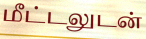
மீட்டலுடன்